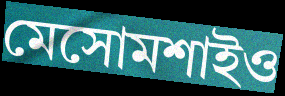
মেসোমশাইও